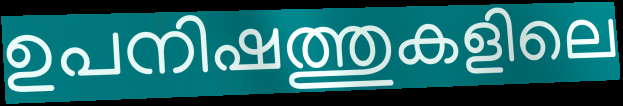
ഉപനിഷത്തുകളിലെ